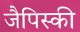
जैपिस्की